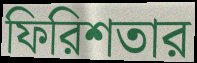
ফিরিশতার